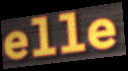
elle